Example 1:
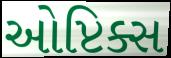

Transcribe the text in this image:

ઓપ્ટિક્સ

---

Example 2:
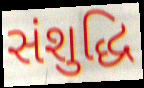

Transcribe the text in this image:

સંશુદ્ધિ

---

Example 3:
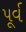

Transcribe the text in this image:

પૂર્વ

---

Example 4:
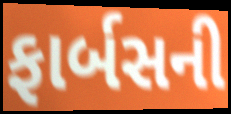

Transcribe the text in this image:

ફાર્બસની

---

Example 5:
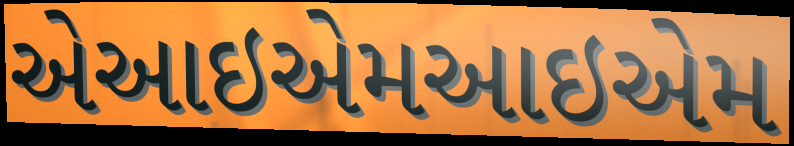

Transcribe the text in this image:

એઆઇએમઆઇએમ